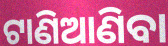
ଟାଣିଆଣିବା